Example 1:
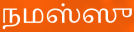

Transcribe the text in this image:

நமஸ்ஸு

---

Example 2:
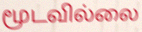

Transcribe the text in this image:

மூடவில்லை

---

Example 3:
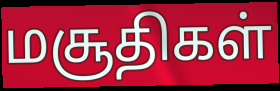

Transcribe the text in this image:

மசூதிகள்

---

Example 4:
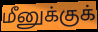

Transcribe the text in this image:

மீனுக்குக்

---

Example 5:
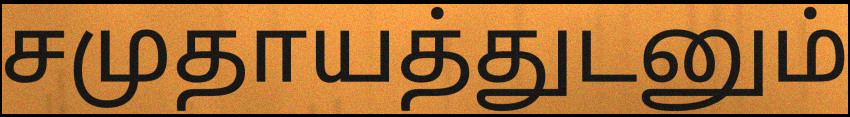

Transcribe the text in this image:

சமுதாயத்துடனும்